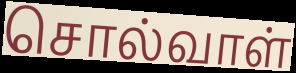
சொல்வாள்